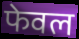
फेवल